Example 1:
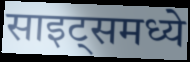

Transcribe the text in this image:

साइट्समध्ये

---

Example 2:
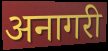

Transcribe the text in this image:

अनागरी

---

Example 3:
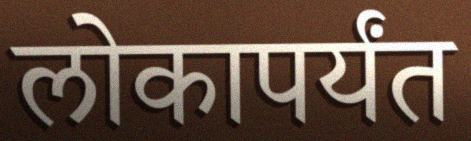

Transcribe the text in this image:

लोकापर्यंत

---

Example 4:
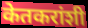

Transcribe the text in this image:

केतकरांशी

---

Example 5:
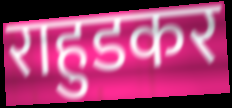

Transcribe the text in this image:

राहुडकर